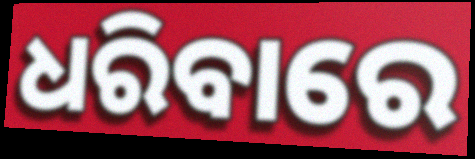
ଧରିବାରେ